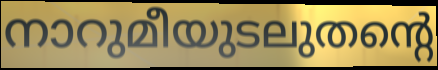
നാറുമീയുടലുതന്റെ